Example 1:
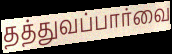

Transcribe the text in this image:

தத்துவப்பார்வை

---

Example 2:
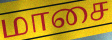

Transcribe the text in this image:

மாசை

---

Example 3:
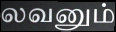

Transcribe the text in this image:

லவனும்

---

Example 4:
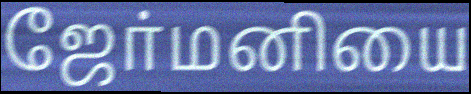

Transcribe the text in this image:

ஜேர்மனியை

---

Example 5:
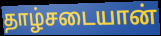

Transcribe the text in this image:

தாழ்சடையான்